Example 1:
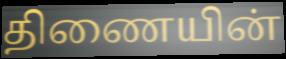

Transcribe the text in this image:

திணையின்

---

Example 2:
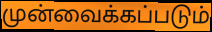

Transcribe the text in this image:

முன்வைக்கப்படும்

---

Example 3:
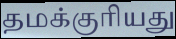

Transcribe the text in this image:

தமக்குரியது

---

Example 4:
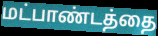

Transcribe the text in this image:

மட்பாண்டத்தை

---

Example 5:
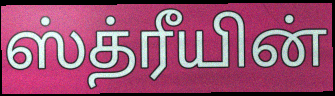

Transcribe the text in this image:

ஸ்த்ரீயின்